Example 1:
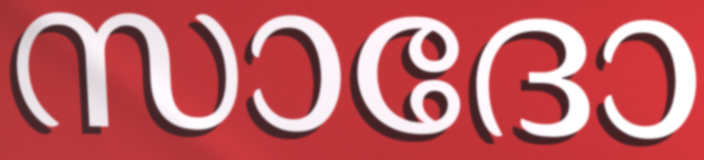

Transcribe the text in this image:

സാദോ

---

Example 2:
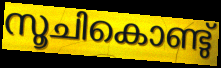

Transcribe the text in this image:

സൂചികൊണ്ടു്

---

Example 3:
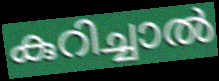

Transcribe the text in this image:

കുറിച്ചാൽ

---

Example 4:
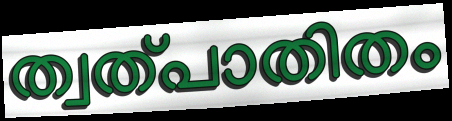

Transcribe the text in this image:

ത്വത്പാതിതം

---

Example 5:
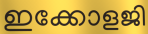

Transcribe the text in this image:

ഇക്കോളജി